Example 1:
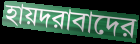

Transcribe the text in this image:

হায়দরাবাদের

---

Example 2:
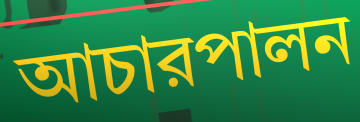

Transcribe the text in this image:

আচারপালন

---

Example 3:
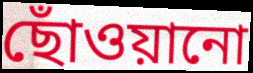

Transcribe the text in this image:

ছোঁওয়ানো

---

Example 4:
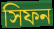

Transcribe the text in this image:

সিফন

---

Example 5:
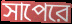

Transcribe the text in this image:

সাপেরে